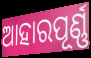
ଆହାରପୂର୍ଣ୍ଣ